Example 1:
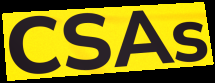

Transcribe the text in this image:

CSAs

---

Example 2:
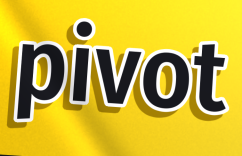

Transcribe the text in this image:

pivot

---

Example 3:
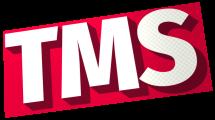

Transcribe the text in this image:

TMS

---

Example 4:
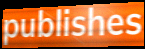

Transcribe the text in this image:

publishes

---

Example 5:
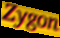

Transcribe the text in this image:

Zygon